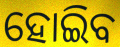
ହୋଇିବ